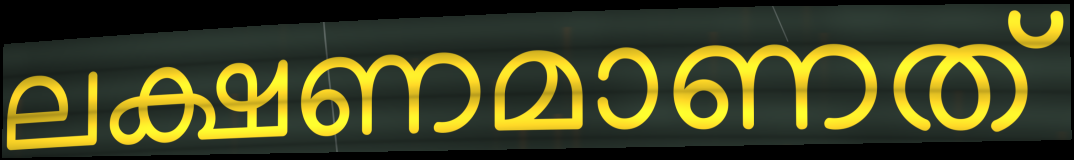
ലക്ഷണമാണത്